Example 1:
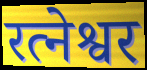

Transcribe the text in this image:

रत्नेश्वर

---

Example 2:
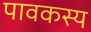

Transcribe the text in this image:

पावकस्य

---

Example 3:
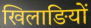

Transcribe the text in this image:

खिलाङियों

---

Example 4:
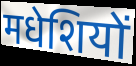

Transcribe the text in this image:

मधेशियों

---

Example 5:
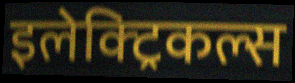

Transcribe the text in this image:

इलेक्ट्रिकल्‍स